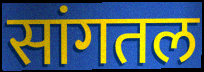
सांगतल